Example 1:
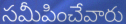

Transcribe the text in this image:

సమీపించేవారు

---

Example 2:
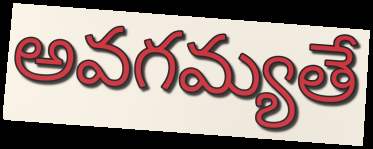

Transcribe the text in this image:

అవగమ్యతే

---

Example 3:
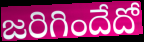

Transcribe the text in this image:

జరిగిందేదో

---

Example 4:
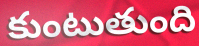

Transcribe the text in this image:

కుంటుతుంది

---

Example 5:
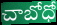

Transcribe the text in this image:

చాబోధో